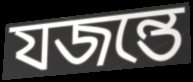
যজন্তে